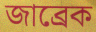
জাব্রেক